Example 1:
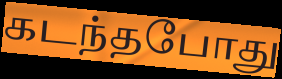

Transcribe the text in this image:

கடந்தபோது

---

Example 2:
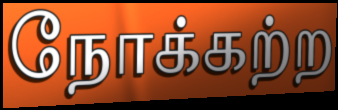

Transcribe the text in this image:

நோக்கற்ற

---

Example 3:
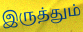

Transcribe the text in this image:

இருத்தும்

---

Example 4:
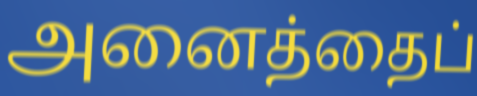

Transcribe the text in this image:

அனைத்தைப்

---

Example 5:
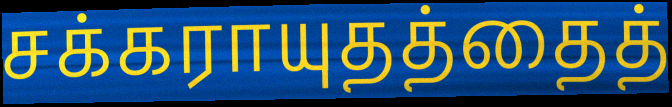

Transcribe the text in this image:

சக்கராயுதத்தைத்